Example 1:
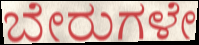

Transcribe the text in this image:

ಬೇರುಗಳೇ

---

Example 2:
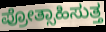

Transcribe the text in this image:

ಪ್ರೋತ್ಸಾಹಿಸುತ್ತ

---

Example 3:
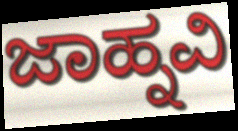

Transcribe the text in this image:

ಜಾಹ್ನವಿ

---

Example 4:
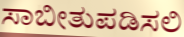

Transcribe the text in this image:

ಸಾಬೀತುಪಡಿಸಲಿ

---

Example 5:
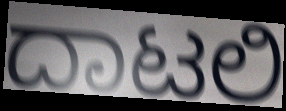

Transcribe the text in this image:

ದಾಟಲಿ